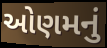
ઓણમનું